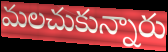
మలచుకున్నారు